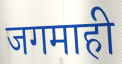
जगमाही